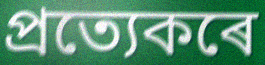
প্ৰত্যেকৰে